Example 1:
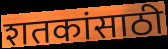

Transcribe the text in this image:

शतकांसाठी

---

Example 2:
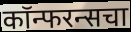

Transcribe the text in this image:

कॉन्फरन्सचा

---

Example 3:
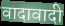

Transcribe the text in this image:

वादावादी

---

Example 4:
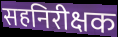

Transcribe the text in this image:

सहनिरीक्षक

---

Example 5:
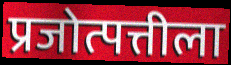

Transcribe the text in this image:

प्रजोत्पत्तीला